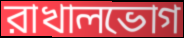
রাখালভোগ